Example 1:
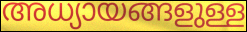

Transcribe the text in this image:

അധ്യായങ്ങളുള്ള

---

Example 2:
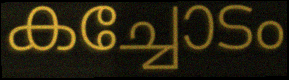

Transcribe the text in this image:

കച്ചോടം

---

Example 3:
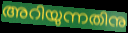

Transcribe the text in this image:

അറിയുന്നതിനു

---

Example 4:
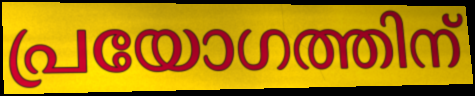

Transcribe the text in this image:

പ്രയോഗത്തിന്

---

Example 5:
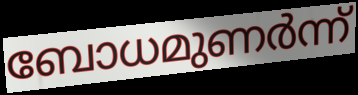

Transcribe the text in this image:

ബോധമുണർന്ന്